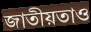
জাতীয়তাও